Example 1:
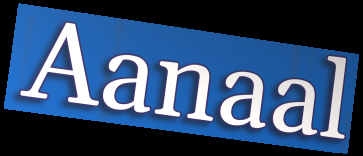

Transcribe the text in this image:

Aanaal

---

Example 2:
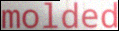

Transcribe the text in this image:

molded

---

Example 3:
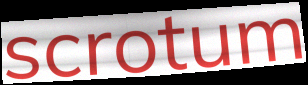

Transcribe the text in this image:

scrotum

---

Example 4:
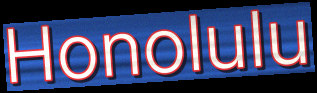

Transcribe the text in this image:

Honolulu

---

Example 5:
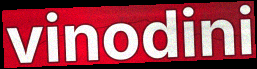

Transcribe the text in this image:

vinodini